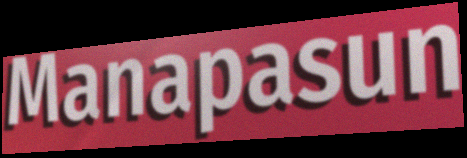
Manapasun